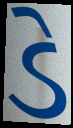
ડે